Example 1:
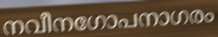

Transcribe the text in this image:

നവീനഗോപനാഗരം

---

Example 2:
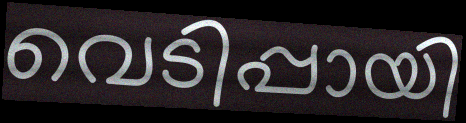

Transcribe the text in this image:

വെടിപ്പായി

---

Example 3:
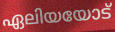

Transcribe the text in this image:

ഏലിയയോട്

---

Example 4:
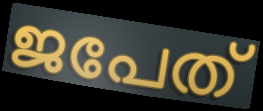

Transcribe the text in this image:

ജപേത്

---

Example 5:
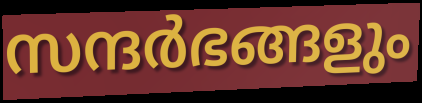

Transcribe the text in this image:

സന്ദർഭങ്ങളും